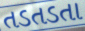
તડતડતા